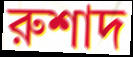
রুশাদ